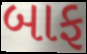
બાફ